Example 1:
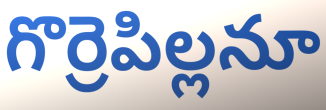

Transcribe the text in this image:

గొర్రెపిల్లనూ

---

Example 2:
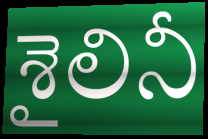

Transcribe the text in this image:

శైలినీ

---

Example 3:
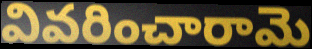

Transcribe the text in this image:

వివరించారామె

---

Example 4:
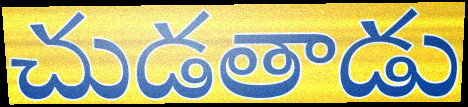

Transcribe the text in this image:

చుడతాడు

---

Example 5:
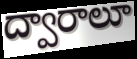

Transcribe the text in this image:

ద్వారాలూ